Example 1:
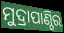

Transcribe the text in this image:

ମୁଦ୍ରାପାଣ୍ଠିର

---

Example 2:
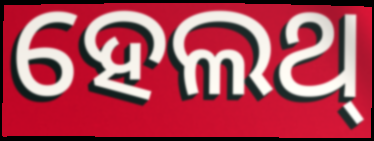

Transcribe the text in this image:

ହେଲଥ୍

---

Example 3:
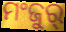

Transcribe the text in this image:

ମଂଜୁର୍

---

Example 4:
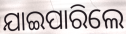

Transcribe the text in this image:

ଯାଇପାରିଲେ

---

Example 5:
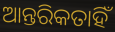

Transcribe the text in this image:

ଆନ୍ତରିକତାହିଁ